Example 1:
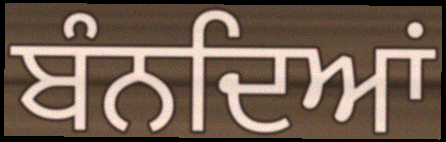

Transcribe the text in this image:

ਬੰਨਦਿਆਂ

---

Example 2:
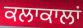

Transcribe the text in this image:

ਕਲਾਕਾਲਾਂ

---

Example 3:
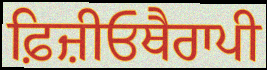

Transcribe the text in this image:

ਫ਼ਿਜ਼ੀਓਥੈਰਾਪੀ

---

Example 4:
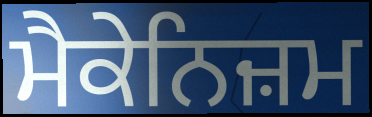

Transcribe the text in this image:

ਮੈਕੇਨਿਜ਼ਮ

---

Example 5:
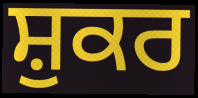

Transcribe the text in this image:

ਸ਼ੁਕਰ